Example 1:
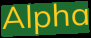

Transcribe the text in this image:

Alpha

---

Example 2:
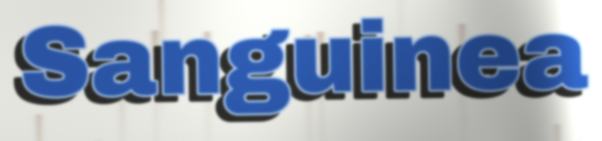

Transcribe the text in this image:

Sanguinea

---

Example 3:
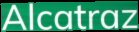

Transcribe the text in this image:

Alcatraz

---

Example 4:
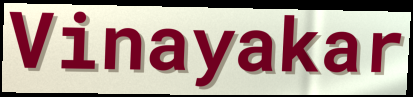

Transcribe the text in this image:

Vinayakar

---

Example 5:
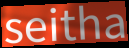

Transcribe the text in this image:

seitha